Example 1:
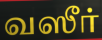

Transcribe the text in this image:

வஸீர்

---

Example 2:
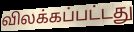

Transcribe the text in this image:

விலக்கப்பட்டது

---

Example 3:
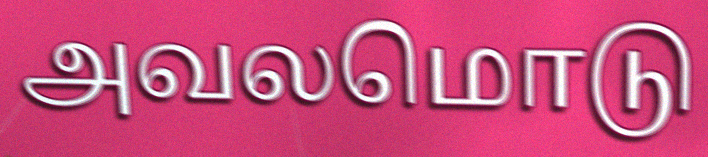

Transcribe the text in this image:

அவலமொடு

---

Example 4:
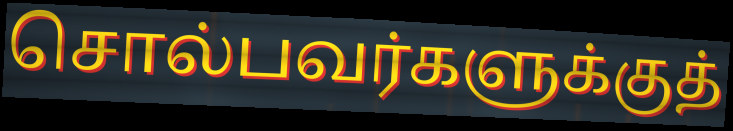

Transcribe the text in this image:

சொல்பவர்களுக்குத்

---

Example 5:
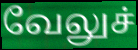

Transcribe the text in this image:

வேலுச்